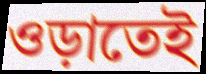
ওড়াতেই